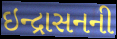
ઇન્દ્રાસનની